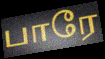
பாரே